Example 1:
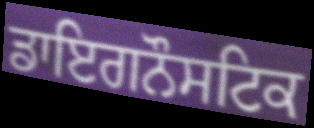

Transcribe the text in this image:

ਡਾਇਗਨੌਸਟਿਕ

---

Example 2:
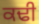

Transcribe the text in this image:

ਕਢੀ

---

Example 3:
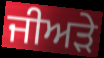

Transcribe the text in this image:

ਜੀਅੜੇ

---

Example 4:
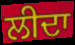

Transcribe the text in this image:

ਲੀਦਾ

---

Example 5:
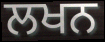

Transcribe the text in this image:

ਲਖਨ